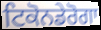
ਟਿਕੋਨਡੇਰੋਗਾ